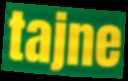
tajne